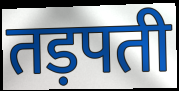
तड़पती